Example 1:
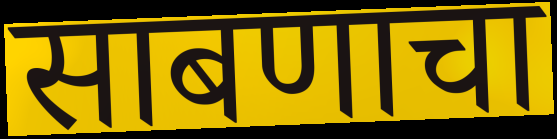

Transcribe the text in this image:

साबणाचा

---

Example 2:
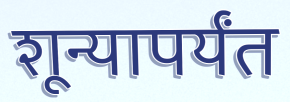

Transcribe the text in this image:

शून्यापर्यंत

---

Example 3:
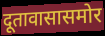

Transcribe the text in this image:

दूतावासासमोर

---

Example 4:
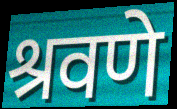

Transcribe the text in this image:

श्रवणे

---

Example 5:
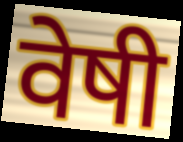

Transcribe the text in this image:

वेषी